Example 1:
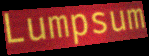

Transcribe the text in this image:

Lumpsum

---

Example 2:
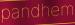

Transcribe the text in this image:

pandhem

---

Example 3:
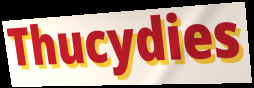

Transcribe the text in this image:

Thucydies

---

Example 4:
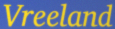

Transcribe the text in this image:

Vreeland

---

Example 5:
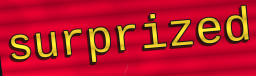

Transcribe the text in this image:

surprized